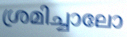
ശ്രമിച്ചാലോ